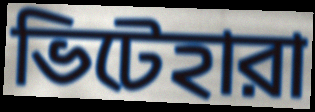
ভিটেহারা